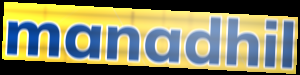
manadhil